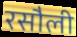
रसौली